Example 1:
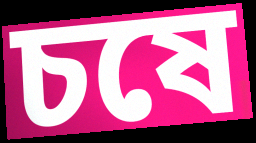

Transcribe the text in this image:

চষে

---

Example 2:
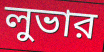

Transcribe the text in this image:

লুভার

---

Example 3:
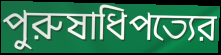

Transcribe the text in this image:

পুরুষাধিপত্যের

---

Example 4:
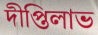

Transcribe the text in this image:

দীপ্তিলাভ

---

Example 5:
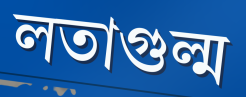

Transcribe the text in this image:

লতাগুল্ম